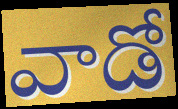
వాడో